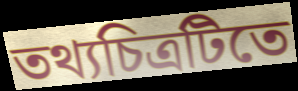
তথ্যচিত্রটিতে